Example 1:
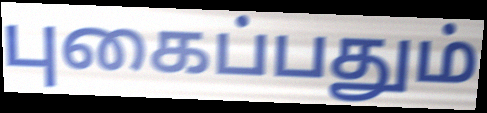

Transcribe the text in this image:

புகைப்பதும்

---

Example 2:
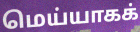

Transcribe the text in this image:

மெய்யாகக்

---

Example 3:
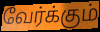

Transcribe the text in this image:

வேர்க்கும்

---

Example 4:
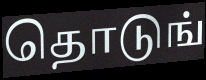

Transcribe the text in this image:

தொடுங்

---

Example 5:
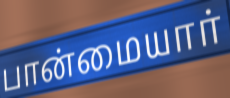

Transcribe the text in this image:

பான்மையார்